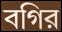
বগির